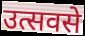
उत्सवसे